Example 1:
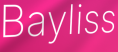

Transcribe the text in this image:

Bayliss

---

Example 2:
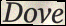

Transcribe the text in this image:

Dove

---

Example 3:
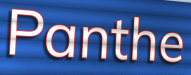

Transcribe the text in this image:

Panthe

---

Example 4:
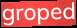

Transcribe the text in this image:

groped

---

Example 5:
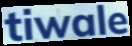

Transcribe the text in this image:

tiwale